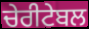
ਚੇਰੀਟੇਬਲ